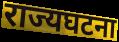
राज्यघटना